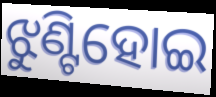
ଝୁଣ୍ଟିହୋଇ